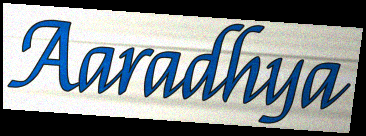
Aaradhya